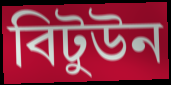
বিটুউন